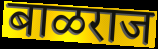
बाळराज